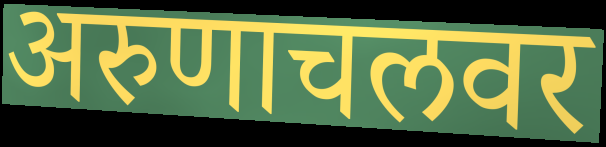
अरुणाचलवर